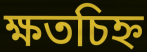
ক্ষতচিহ্ন